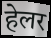
हेलर